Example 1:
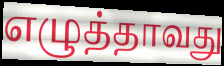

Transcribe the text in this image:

எழுத்தாவது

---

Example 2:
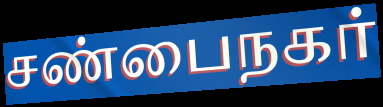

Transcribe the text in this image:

சண்பைநகர்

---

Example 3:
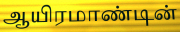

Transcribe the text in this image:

ஆயிரமாண்டின்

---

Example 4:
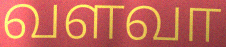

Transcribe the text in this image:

வளவா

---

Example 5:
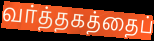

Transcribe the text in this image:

வர்த்தகத்தைப்